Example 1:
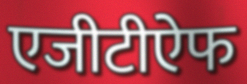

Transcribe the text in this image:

एजीटीऐफ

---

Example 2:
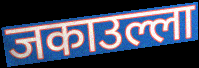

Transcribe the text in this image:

जकाउल्ला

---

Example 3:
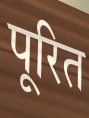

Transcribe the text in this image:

पूरित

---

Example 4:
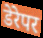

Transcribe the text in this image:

डेरेपर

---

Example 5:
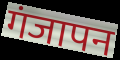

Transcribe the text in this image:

गंजापन